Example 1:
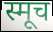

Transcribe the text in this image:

स्मूच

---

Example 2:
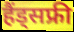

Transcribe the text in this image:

हैंड्सफ्री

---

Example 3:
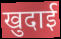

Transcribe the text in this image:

खुदाई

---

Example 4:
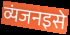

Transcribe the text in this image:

व्यंजनइसे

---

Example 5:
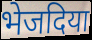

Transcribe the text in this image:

भेजदिया